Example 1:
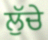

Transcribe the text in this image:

ਲੁੱਚੇ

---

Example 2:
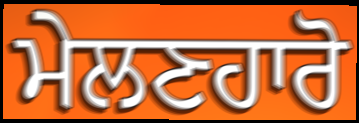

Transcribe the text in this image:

ਮੇਲਣਹਾਰੋ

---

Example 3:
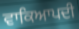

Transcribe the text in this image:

ਵਾਕਿਆਪਦੀ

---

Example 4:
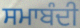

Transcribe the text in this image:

ਸਮਾਬੰਦੀ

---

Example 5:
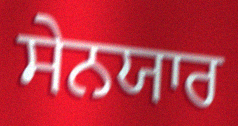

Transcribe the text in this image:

ਸੇਨਯਾਰ